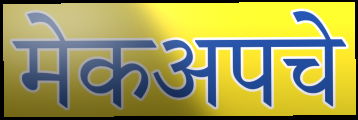
मेकअपचे